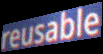
reusable